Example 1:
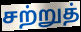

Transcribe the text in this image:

சற்றுத்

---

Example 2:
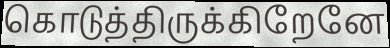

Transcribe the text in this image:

கொடுத்திருக்கிறேனே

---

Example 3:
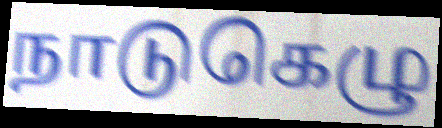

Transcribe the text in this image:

நாடுகெழு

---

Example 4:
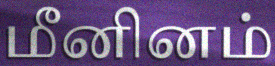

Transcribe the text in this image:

மீனினம்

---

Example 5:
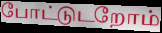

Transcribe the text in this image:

போட்டுடறோம்